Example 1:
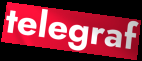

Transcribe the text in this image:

telegraf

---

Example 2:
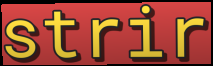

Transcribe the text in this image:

strir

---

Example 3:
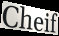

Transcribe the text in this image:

Cheif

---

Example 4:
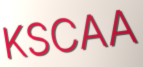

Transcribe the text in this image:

KSCAA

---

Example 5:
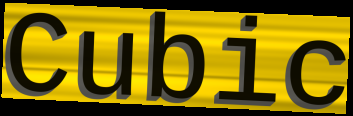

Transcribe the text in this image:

Cubic